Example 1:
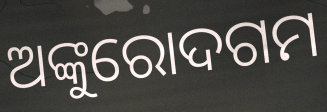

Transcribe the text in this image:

ଅଙ୍କୁରୋଦଗମ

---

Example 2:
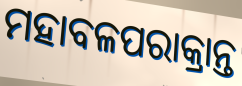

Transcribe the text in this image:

ମହାବଳପରାକ୍ରାନ୍ତ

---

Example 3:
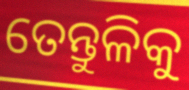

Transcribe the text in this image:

ତେନ୍ତୁଳିକୁ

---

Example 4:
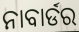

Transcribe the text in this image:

ନାବାର୍ଡର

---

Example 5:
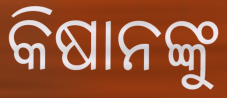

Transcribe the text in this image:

କିଷାନଙ୍କୁ